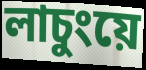
লাচুংয়ে